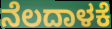
ನೆಲದಾಳಕೆ